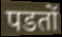
पडतों